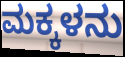
ಮಕ್ಕಳನು